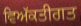
ਵਿਅੱਕਤੀਗਤ